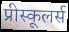
प्रीस्कूलर्स